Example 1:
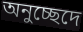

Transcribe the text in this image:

অনুচ্ছেদে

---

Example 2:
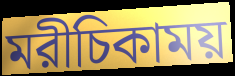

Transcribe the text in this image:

মরীচিকাময়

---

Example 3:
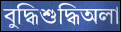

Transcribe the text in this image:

বুদ্ধিশুদ্ধিঅলা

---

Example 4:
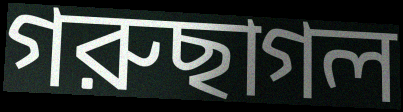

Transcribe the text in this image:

গরুছাগল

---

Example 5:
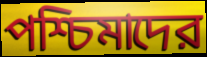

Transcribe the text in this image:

পশ্চিমাদের